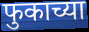
फुकाच्या